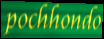
pochhondo